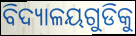
ବିଦ୍ୟାଳୟଗୁଡିକୁ